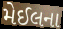
મેઈલના